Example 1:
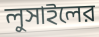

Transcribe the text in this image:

লুসাইলের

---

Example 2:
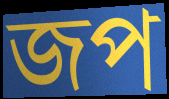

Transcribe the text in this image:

জপ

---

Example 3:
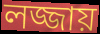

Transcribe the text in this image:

লজ্জায়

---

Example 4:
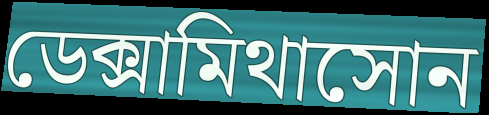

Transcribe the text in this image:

ডেক্সামিথাসোন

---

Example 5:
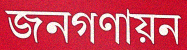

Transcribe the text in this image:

জনগণায়ন